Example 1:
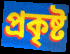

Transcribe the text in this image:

প্ৰকৃষ্ট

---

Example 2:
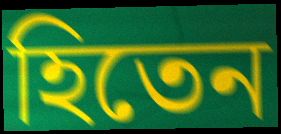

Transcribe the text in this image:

হিতেন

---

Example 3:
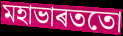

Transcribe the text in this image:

মহাভাৰততো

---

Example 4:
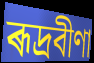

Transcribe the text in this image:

ৰূদ্ৰবীণা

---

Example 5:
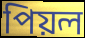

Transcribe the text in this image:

পিয়ল